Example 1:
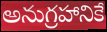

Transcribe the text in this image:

అనుగ్రహానికే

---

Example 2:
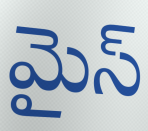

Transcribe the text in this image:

మైస్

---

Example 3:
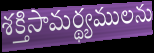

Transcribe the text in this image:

శక్తిసామర్థ్యములను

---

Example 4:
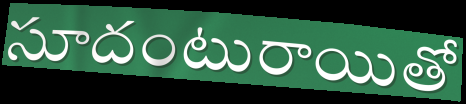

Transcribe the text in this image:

సూదంటురాయితో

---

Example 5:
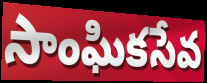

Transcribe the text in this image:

సాంఘికసేవ